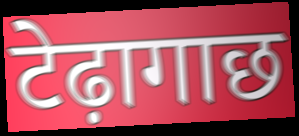
टेढ़ागाछ